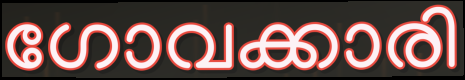
ഗോവക്കാരി